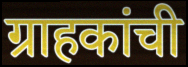
ग्राहकांची